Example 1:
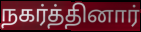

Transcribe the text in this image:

நகர்த்தினார்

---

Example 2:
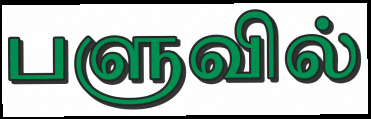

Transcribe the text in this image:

பளுவில்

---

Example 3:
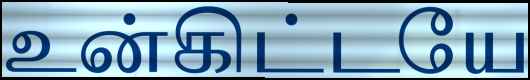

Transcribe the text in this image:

உன்கிட்டயே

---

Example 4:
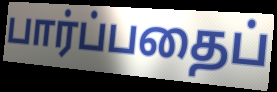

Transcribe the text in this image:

பார்ப்பதைப்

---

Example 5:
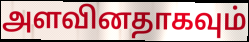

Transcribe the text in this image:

அளவினதாகவும்